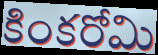
కింకరోమి